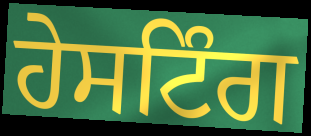
ਹੇਸਟਿੰਗ